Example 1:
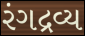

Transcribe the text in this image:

રંગદ્રવ્ય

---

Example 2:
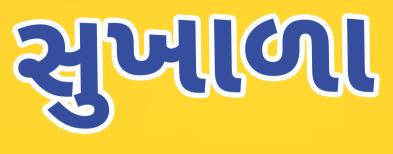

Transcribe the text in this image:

સુખાળા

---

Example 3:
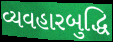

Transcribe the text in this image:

વ્યવહારબુદ્ધિ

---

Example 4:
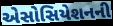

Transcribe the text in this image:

એસોસિયેશનની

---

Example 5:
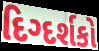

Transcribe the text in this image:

દિગ્દર્શકો